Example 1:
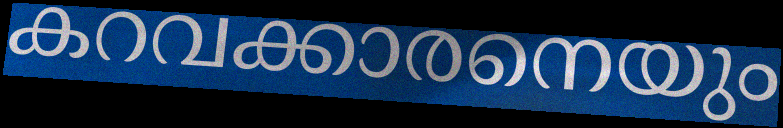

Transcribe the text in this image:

കറവക്കാരനെയും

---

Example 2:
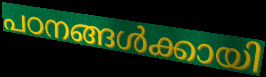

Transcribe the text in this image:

പഠനങ്ങൾക്കായി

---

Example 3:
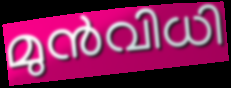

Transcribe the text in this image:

മുൻവിധി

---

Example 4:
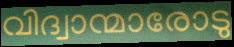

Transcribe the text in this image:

വിദ്വാന്മാരോടു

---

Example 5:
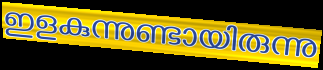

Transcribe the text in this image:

ഇളകുന്നുണ്ടായിരുന്നു